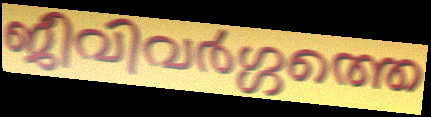
ജീവിവർഗ്ഗത്തെ